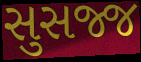
સુસજ્જ